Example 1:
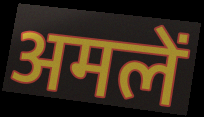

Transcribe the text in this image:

अमलें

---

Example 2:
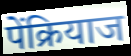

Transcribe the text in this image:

पेंक्रियाज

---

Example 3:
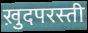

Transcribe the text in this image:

ख़ुदपरस्ती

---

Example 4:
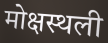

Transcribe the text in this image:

मोक्षस्थली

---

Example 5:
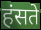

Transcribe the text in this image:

हंसते